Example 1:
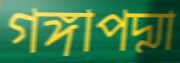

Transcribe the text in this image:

গঙ্গাপদ্মা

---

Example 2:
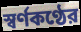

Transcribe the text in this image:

স্বর্ণকণ্ঠের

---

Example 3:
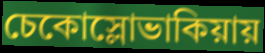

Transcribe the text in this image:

চেকোস্লোভাকিয়ায়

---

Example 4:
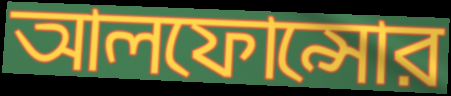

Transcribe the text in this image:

আলফোন্সোর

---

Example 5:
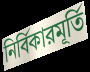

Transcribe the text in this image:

নির্বিকারমূর্তি